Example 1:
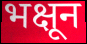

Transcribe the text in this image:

भक्षून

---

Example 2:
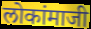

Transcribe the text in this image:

लोकांमाजी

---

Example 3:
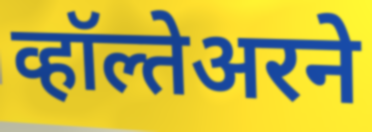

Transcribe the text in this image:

व्हॉल्तेअरने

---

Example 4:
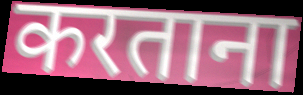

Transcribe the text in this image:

करताना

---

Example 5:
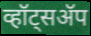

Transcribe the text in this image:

व्हॉट्सॲप